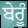
ਬੇਰੂੰ